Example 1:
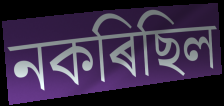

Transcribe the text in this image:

নকৰিছিল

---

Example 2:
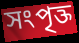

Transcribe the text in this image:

সংপৃক্ত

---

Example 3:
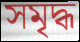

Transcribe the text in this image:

সমৃদ্ধ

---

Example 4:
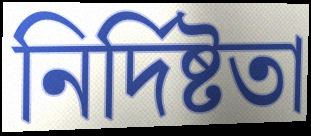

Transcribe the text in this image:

নিৰ্দিষ্টতা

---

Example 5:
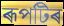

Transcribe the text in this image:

ৰূপটিৰ